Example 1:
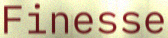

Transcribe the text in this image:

Finesse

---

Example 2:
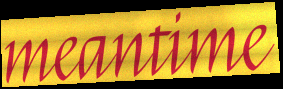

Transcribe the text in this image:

meantime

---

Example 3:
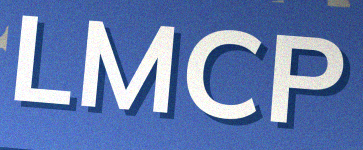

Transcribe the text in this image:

LMCP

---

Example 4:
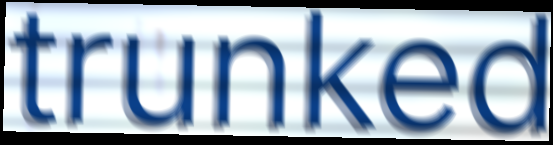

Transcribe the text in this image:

trunked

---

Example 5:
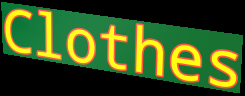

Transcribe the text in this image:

Clothes